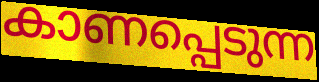
കാണപ്പെടുന്ന